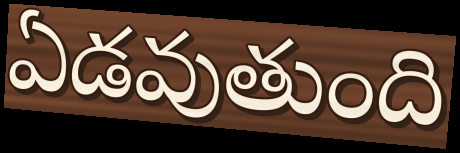
ఏడవుతుంది